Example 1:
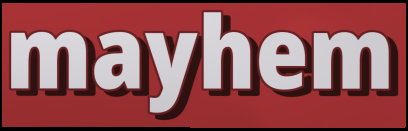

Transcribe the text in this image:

mayhem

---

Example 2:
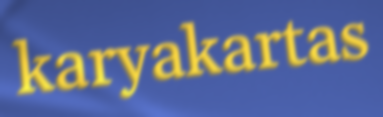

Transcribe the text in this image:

karyakartas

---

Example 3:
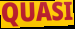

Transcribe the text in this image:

QUASI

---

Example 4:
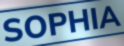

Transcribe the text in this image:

SOPHIA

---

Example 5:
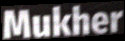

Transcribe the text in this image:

Mukher